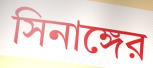
সিনাঙ্গের